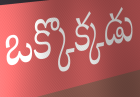
ఒక్కొక్కడు